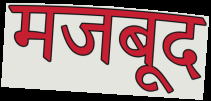
मजबूद